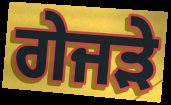
ਗੇਜੜੇ